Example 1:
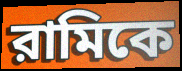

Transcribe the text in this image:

রামিকে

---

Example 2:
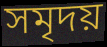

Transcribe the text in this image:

সমৃদয়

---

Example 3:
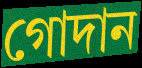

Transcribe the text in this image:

গোদান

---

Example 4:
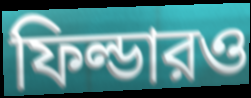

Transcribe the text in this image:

ফিল্ডারও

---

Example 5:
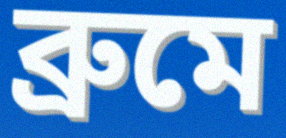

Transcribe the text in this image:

ব্রুমে